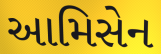
આમિસેન